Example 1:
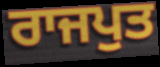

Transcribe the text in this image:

ਰਾਜਪੁਤ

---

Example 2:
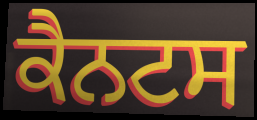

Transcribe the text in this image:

ਕੈਨਟਸ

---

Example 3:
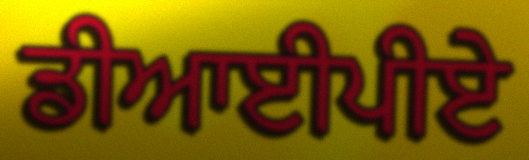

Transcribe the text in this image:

ਡੀਆਈਪੀਏ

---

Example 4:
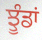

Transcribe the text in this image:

ਝੂੰਡਾਂ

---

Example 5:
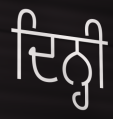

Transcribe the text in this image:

ਦਿਨ੍ਹੀ